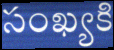
సంఖ్యకి